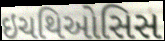
ઇચથિઓસિસ